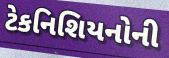
ટેકનિશિયનોની